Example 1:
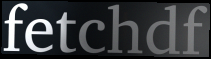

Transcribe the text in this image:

fetchdf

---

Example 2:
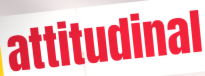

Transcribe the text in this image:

attitudinal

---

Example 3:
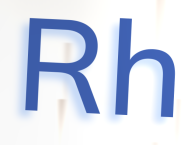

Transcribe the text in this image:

Rh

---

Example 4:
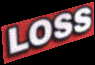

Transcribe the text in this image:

LOSS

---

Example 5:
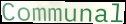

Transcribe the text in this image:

Communal